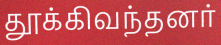
தூக்கிவந்தனர்